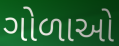
ગોળાઓ